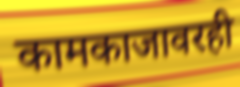
कामकाजावरही